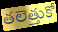
తలెత్తుకో